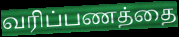
வரிப்பணத்தை